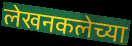
लेखनकलेच्या